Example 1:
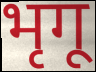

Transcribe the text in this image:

भृगू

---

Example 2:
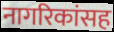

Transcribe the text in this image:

नागरिकांसह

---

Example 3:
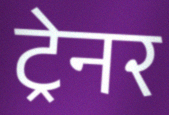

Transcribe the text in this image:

ट्रेनर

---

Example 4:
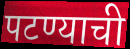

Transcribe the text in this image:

पटण्याची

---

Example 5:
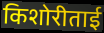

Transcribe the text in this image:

किशोरीताई